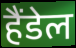
हैंडेल